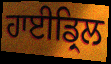
ਹਾਈਡ੍ਰਿਲ